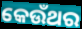
କେଉଁଥର